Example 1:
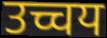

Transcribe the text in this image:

उच्चय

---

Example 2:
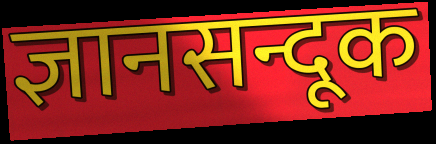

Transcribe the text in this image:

ज्ञानसन्दूक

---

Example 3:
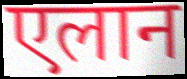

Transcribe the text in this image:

एलान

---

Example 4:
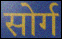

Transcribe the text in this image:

सोर्ग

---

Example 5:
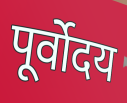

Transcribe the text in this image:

पूर्वोदय